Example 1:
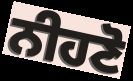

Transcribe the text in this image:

ਨੀਹਣੋ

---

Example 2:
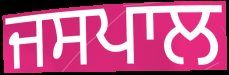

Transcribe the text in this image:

ਜਸਪਾਲ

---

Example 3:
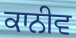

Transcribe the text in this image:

ਕਾਨੀਵ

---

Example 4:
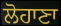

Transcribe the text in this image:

ਲੋਹਾਣਾ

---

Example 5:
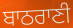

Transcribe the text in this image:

ਬਾਠਰਾਣੀ